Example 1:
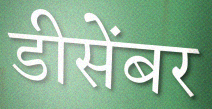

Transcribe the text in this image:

डीसेंबर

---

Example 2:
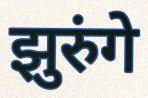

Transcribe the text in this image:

झुरुंगे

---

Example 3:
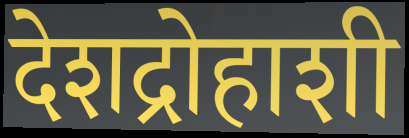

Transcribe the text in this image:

देशद्रोहाशी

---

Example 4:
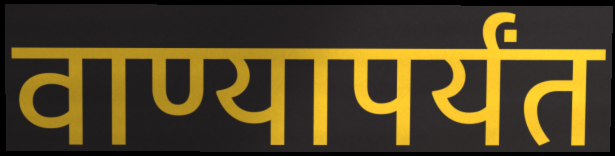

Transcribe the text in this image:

वाण्यापर्यंत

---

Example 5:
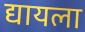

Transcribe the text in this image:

द्यायला